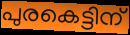
പുരകെട്ടിന്